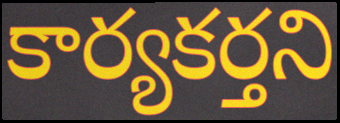
కార్యకర్తని